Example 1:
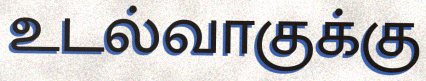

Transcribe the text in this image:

உடல்வாகுக்கு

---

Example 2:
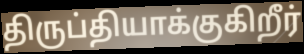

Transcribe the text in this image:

திருப்தியாக்குகிறீர்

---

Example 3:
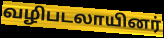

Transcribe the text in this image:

வழிபடலாயினர்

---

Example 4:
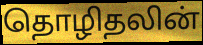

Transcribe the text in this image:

தொழிதலின்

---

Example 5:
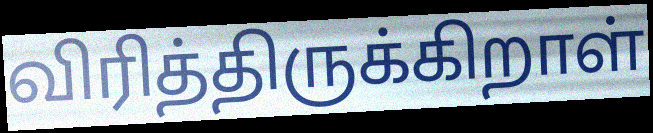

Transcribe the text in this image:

விரித்திருக்கிறாள்